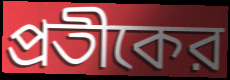
প্রতীকের